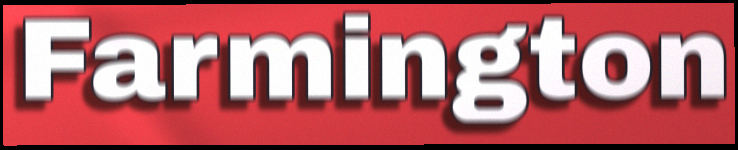
Farmington